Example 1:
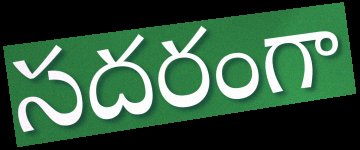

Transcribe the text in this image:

సదరంగా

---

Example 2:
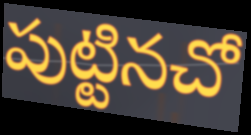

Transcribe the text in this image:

పుట్టినచో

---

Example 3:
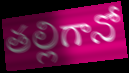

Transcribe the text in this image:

తల్లిగానో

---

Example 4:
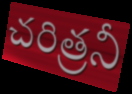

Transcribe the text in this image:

చరిత్రనీ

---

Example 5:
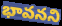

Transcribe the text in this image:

భావనని